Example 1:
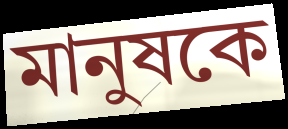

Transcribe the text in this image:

মানুষকে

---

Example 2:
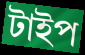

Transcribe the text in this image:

টাইপ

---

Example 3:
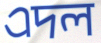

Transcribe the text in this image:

এদল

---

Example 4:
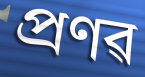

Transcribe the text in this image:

প্ৰণৱ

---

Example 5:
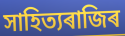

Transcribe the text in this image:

সাহিত্যৰাজিৰ